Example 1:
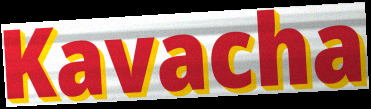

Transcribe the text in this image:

Kavacha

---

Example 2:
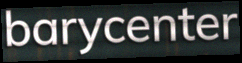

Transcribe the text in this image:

barycenter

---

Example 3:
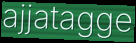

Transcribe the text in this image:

ajjatagge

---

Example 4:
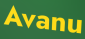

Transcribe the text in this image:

Avanu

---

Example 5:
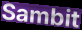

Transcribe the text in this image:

Sambit